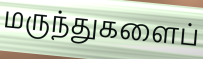
மருந்துகளைப்